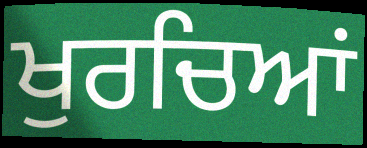
ਖੁਰਚਿਆਂ